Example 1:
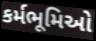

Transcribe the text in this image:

કર્મભૂમિઓ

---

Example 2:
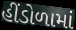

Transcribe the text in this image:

હીંડોળામાં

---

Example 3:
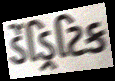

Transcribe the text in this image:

ડેંડ્રિટિક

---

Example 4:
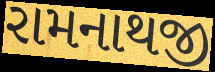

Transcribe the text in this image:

રામનાથજી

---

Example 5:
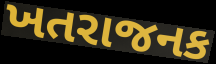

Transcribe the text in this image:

ખતરાજનક